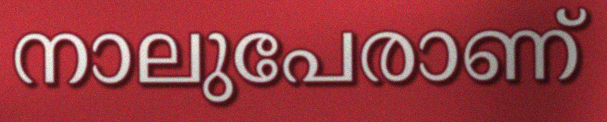
നാലുപേരാണ്